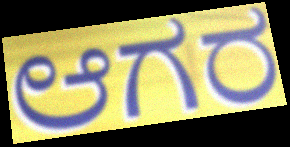
ಆಗರ